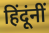
हिंदूंनीं